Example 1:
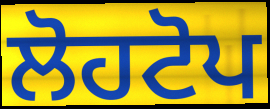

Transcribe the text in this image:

ਲੋਹਟੋਪ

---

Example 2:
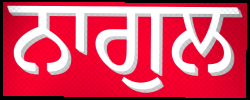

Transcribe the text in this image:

ਨਾਗੁਲ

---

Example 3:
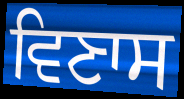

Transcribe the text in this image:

ਵਿਣਾਸ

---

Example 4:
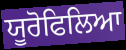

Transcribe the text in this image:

ਯੂਰੋਫਿਲਿਆ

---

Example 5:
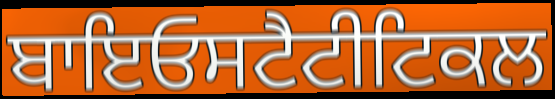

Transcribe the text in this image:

ਬਾਇਓਸਟੈਟੀਟਿਕਲ